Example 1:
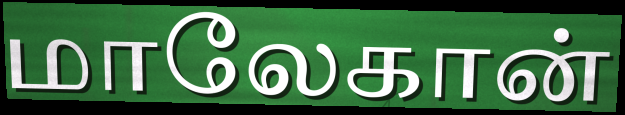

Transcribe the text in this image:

மாலேகான்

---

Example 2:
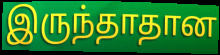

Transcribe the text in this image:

இருந்தாதான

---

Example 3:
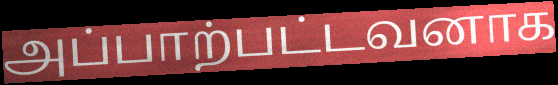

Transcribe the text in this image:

அப்பாற்பட்டவனாக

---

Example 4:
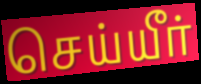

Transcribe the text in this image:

செய்யீர்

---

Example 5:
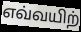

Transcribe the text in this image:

எவ்வயிற்